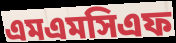
এমএমসিএফ